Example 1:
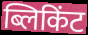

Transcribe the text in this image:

ब्लिकिंट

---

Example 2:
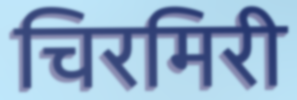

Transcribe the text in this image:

चिरमिरी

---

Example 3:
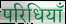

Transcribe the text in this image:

परिधियाँ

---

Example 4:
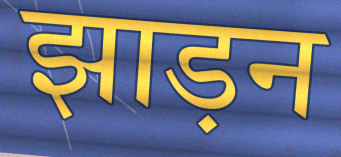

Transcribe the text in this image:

झाड़न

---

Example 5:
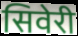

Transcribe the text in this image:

सिवेरी